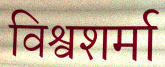
विश्वशर्मा